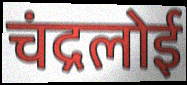
चंद्रलोई